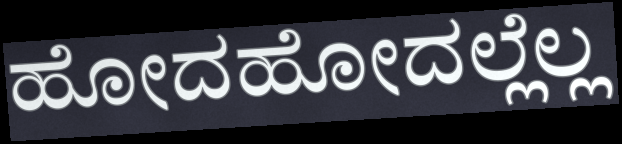
ಹೋದಹೋದಲ್ಲೆಲ್ಲ